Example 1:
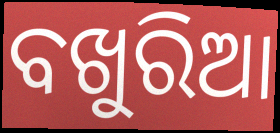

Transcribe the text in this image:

ବଖୁରିଆ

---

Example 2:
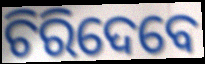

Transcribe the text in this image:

ଚିରିଦେବେ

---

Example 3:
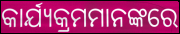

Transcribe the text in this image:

କାର୍ଯ୍ୟକ୍ରମମାନଙ୍କରେ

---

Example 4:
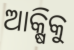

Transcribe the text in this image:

ଆକ୍ଷିକୁ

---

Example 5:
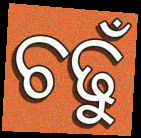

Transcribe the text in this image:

ଚଢୁଁ